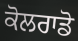
ਕੋਲਰਾਡੋ